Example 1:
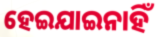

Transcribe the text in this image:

ହେଇଯାଇନାହିଁ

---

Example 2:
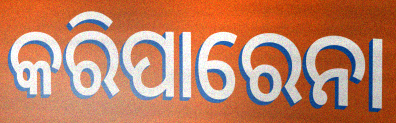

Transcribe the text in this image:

କରିପାରେନା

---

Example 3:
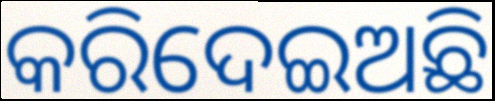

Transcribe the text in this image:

କରିଦେଇଅଛି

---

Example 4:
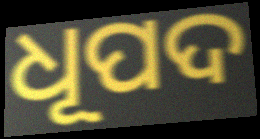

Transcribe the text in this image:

ଧୂପଦ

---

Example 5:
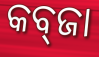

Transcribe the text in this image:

କବ୍‌ଜା